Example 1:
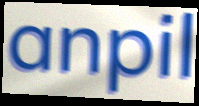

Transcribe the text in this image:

anpil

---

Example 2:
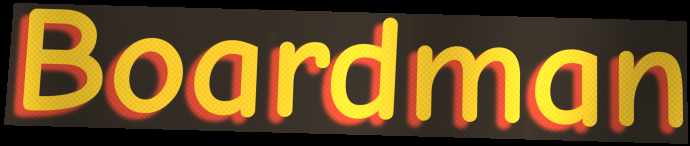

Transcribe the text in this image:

Boardman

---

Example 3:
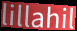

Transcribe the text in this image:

lillahil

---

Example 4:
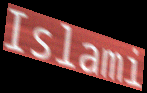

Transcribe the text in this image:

Islami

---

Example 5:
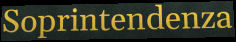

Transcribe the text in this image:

Soprintendenza